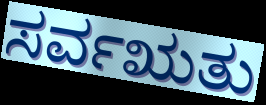
ಸರ್ವಋತು